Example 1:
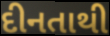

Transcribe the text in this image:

દીનતાથી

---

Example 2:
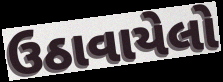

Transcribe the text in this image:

ઉઠાવાયેલો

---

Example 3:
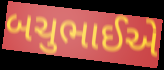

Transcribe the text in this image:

બચુભાઈએ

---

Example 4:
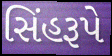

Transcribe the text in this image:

સિંહરૂપે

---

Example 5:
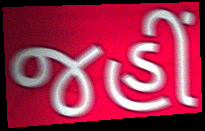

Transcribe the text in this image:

જહીં